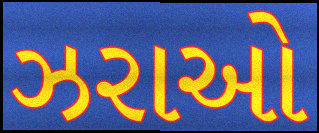
ઝરાઓ